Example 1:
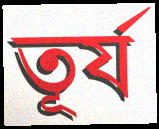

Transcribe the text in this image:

তূর্য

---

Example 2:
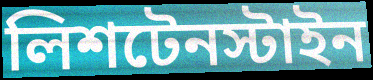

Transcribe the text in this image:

লিশটেনস্টাইন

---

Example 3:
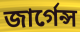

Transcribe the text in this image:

জার্গেন্স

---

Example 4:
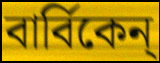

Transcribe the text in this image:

বার্বিকেন্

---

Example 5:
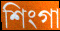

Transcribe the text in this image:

শিংগা